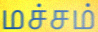
மச்சம்